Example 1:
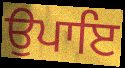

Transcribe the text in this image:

ਉਪਾਇ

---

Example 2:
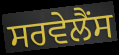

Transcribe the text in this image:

ਸਰਵੇਲੈਂਸ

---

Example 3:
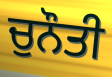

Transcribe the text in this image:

ਚੁਨੌਤੀ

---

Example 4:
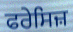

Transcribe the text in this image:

ਫਰੇਸਿਜ਼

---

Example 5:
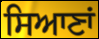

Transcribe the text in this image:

ਸਿਆਣਾਂ